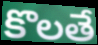
కొలతే